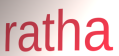
ratha